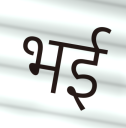
भई